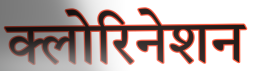
क्लोरिनेशन